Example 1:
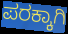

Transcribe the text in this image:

ಪರಕ್ಕಾಗಿ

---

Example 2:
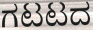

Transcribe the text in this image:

ಗಟಟದ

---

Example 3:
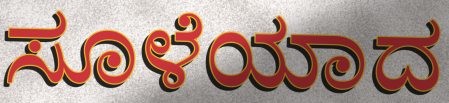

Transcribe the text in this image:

ಸೂಳೆಯಾದ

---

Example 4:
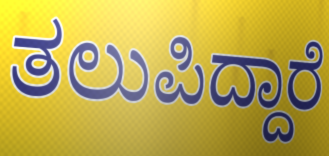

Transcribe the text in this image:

ತಲುಪಿದ್ದಾರೆ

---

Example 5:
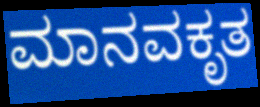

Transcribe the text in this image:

ಮಾನವಕೃತ